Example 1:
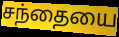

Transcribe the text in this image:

சந்தையை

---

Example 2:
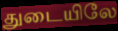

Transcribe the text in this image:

துடையிலே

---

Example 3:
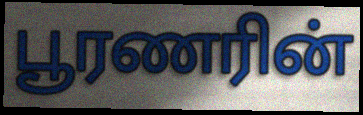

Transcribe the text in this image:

பூரணரின்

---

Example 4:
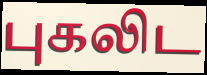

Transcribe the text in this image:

புகலிட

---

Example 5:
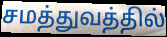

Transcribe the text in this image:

சமத்துவத்தில்